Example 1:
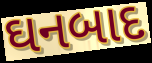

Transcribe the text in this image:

ઘનબાદ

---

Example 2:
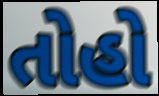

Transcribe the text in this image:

તોહો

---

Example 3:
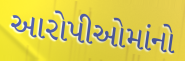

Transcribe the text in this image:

આરોપીઓમાંનો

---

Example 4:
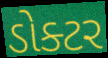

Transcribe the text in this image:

ડોક્ટર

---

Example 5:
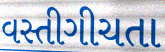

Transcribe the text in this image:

વસ્તીગીચતા